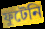
ফুটেনি